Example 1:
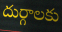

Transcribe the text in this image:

దుర్గాలకు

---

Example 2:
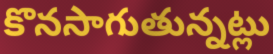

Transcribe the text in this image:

కొనసాగుతున్నట్లు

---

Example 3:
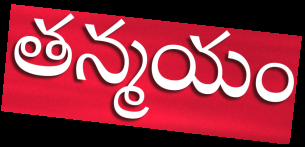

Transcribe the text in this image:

తన్మయం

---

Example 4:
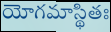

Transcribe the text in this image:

యోగమాస్థితః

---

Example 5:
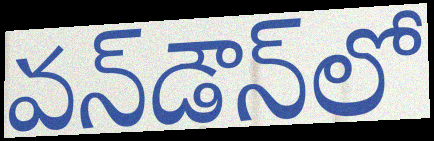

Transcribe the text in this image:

వన్‌డౌన్‌లో